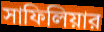
সাফিলিয়ার